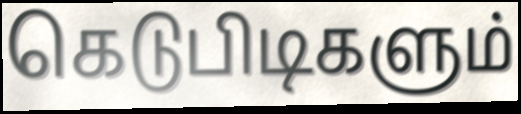
கெடுபிடிகளும்